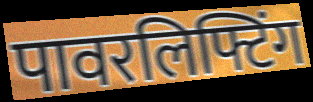
पावरलिफ्टिंग